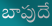
బాపుదే